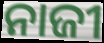
ନାଜୀ